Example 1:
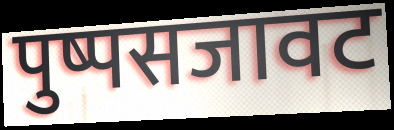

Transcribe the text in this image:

पुष्पसजावट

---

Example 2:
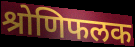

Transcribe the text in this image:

श्रोणिफलक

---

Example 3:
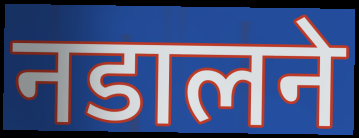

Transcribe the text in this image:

नडालने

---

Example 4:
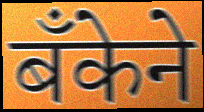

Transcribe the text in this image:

बँकेने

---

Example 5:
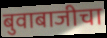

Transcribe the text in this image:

बुवाबाजीचा